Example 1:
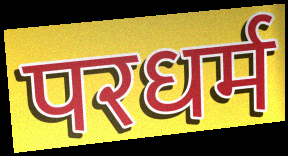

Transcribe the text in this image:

परधर्म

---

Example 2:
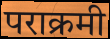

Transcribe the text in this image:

पराक्रमी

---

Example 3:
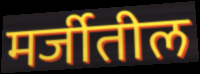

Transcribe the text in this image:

मर्जीतील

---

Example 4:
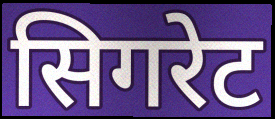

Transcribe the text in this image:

सिगरेट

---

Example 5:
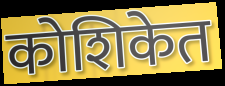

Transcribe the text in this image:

कोशिकेत